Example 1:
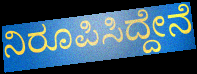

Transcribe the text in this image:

ನಿರೂಪಿಸಿದ್ದೇನೆ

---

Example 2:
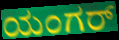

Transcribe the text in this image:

ಯಂಗರ್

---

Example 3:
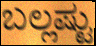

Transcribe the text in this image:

ಬಲ್ಲಷ್ಟು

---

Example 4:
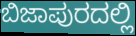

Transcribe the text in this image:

ಬಿಜಾಪುರದಲ್ಲಿ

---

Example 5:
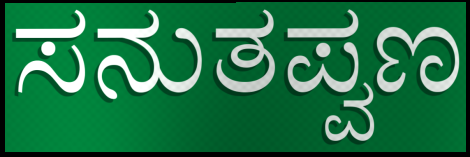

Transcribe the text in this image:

ಸನುತಪ್ವಣ